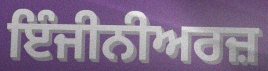
ਇੰਜੀਨੀਅਰਜ਼